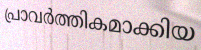
പ്രാവർത്തികമാക്കിയ